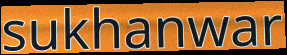
sukhanwar